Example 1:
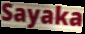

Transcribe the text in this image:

Sayaka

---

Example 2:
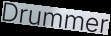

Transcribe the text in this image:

Drummer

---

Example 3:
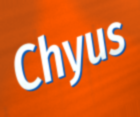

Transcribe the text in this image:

Chyus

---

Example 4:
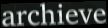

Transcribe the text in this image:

archieve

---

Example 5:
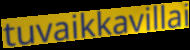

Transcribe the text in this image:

tuvaikkavillai